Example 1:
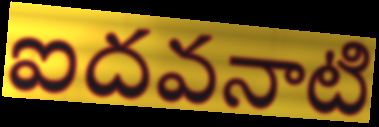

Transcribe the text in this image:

ఐదవనాటి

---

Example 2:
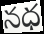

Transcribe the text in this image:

నధ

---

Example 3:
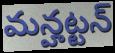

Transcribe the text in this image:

మన్హట్టన్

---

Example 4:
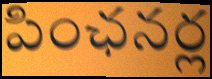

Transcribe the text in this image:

పింఛనర్ల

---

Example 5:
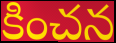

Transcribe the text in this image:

కించన